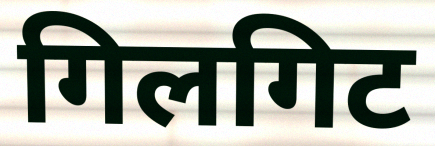
गिलगिट